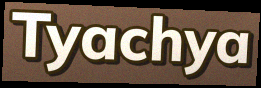
Tyachya